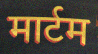
मार्टम